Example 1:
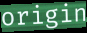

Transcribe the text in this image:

origin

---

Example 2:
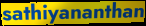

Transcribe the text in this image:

sathiyananthan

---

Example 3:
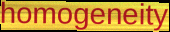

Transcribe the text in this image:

homogeneity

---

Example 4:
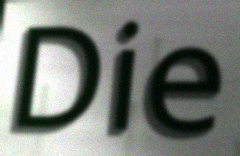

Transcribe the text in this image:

Die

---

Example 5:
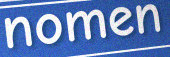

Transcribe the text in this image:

nomen